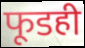
फूडही